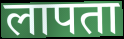
लापता